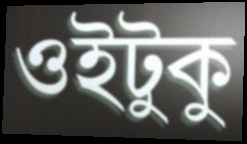
ওইটুকু